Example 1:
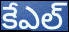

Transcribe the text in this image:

కేఎల్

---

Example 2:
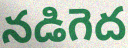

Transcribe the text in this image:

నడిగెద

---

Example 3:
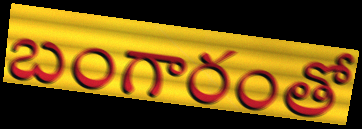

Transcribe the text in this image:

బంగారంతో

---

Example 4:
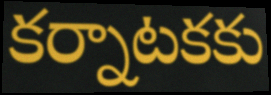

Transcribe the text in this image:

కర్నాటకకు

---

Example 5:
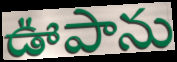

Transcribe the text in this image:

ఊపాను